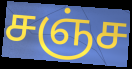
சஞ்ச